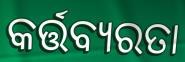
କର୍ତ୍ତବ୍ୟରତା